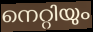
നെറ്റിയും